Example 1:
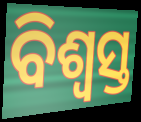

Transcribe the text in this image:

ବିଶ୍ୱସ୍ତ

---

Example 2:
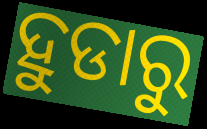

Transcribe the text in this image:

ହୁଡାରୁ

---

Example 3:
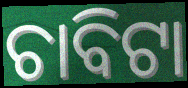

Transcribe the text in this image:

ଚାବିଟା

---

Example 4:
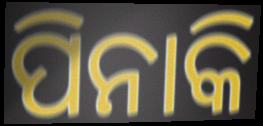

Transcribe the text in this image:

ପିନାକି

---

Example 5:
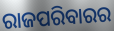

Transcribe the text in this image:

ରାଜପରିବାରର